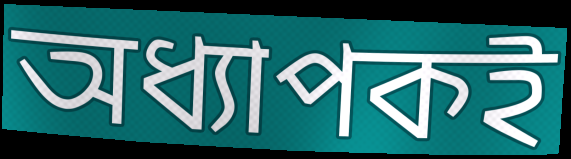
অধ্যাপকই